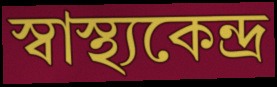
স্বাস্থ্যকেন্দ্র